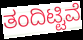
ತಂದಿಟ್ಟಿವೆ